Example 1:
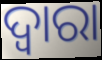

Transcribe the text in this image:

ଦ୍ବାରା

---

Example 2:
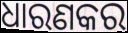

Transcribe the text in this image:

ଧାରଣକର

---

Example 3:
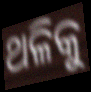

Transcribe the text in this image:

ଥଳିକୁ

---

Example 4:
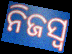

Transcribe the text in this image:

ନିଜସ୍ୱ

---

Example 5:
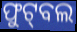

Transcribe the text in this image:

ଫୁଟ୍‌ବଲ